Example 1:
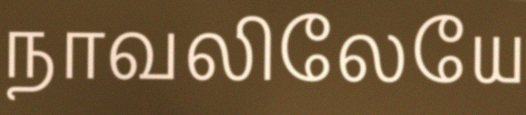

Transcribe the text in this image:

நாவலிலேயே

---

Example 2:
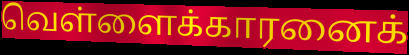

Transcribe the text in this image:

வெள்ளைக்காரனைக்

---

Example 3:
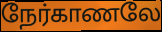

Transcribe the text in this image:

நேர்காணலே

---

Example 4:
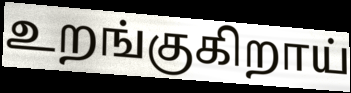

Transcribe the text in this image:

உறங்குகிறாய்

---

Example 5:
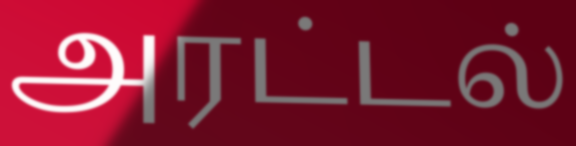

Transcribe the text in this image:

அரட்டல்